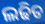
ଲଢିତ